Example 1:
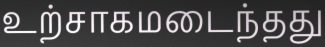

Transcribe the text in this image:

உற்சாகமடைந்தது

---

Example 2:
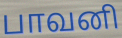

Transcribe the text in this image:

பாவனி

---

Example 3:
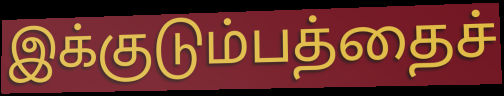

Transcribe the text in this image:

இக்குடும்பத்தைச்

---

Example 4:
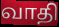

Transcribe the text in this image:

வாதி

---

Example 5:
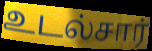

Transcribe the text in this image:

உடல்சார்